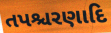
તપશ્ચરણાદિ